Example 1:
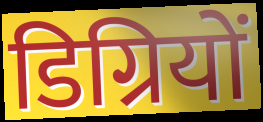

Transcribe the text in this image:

डिग्रियों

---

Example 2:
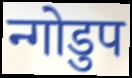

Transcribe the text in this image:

न्गोडुप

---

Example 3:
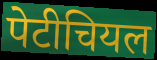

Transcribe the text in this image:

पेटीचियल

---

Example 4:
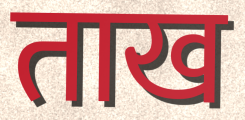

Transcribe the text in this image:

ताख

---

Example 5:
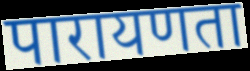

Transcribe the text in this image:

पारायणता